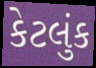
કેટલુંક